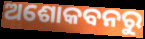
ଅଶୋକବନରୁ